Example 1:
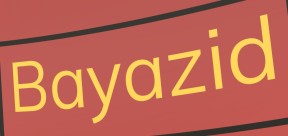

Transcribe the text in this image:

Bayazid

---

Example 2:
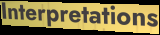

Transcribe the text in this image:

Interpretations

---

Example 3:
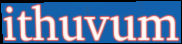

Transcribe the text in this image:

ithuvum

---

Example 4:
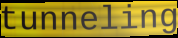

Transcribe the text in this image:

tunneling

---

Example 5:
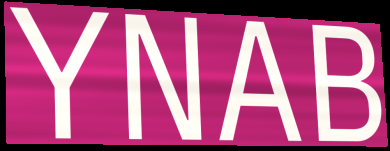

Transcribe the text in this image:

YNAB